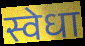
स्वेधा